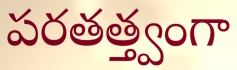
పరతత్త్వంగా